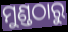
ମୁଣ୍ଡଠାରୁ